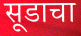
सूडाचा